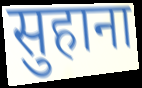
सुहाना